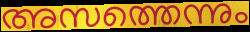
അസത്തെന്നും